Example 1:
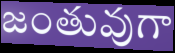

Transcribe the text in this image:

జంతువుగా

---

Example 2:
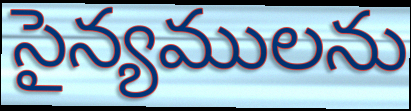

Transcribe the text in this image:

సైన్యములను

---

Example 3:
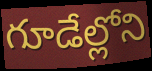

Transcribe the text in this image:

గూడేల్లోని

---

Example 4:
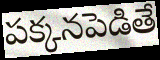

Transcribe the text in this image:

పక్కనపెడితే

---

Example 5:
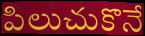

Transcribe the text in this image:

పిలుచుకొనే